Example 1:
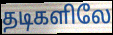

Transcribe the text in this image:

தடிகளிலே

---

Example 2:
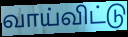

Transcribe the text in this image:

வாய்விட்டு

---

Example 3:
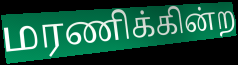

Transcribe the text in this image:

மரணிக்கின்ற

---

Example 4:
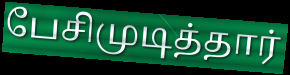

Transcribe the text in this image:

பேசிமுடித்தார்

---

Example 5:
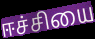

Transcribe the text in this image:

ஈச்சியை